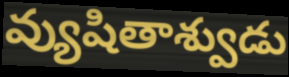
వ్యుషితాశ్వుడు